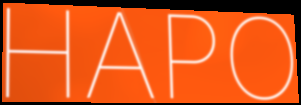
HAPO